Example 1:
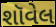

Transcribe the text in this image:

શૉવેલ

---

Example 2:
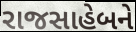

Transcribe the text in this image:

રાજસાહેબને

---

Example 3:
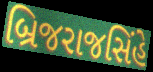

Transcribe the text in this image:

બ્રિજરાજસિંહે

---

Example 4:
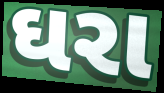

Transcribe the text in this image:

ઘરા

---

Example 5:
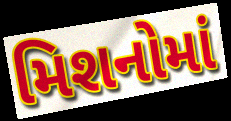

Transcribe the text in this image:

મિશનોમાં